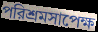
পরিশ্রমসাপেক্ষ